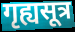
गृह्यसूत्र